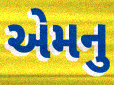
એમનુ